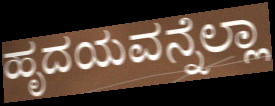
ಹೃದಯವನ್ನೆಲ್ಲಾ